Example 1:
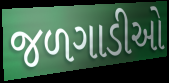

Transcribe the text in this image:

જળગાડીઓ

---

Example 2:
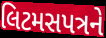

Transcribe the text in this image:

લિટમસપત્રને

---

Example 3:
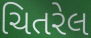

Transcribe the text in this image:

ચિતરેલ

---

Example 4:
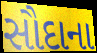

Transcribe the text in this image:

સૌદાના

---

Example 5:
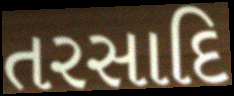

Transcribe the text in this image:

તરસાદિ